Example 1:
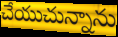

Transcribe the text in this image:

చేయుచున్నాను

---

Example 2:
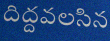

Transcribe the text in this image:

దిద్దవలసిన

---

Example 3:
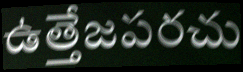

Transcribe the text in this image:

ఉత్తేజపరచు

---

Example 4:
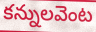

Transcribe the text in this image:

కన్నులవెంట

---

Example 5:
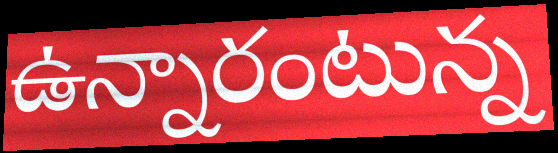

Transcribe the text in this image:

ఉన్నారంటున్న